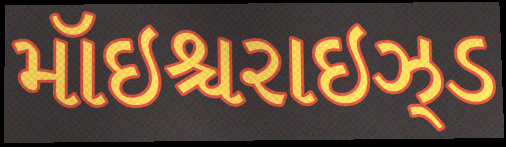
મૉઇશ્ચરાઇઝ્ડ